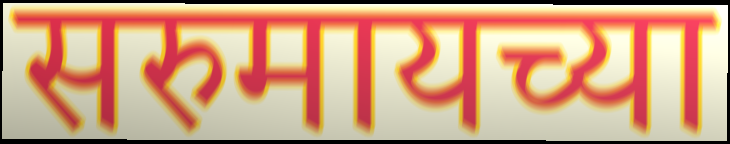
सरुमायच्या